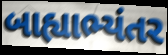
બાહ્યાભ્યંતર